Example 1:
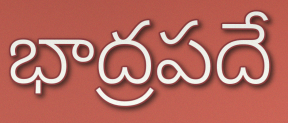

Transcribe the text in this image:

భాద్రపదే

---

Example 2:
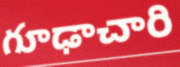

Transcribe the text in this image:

గూఢాచారి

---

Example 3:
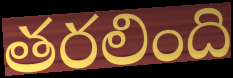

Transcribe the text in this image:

తరలింది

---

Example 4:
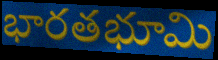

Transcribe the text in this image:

భారతభూమి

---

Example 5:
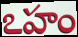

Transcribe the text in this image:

ఽహం